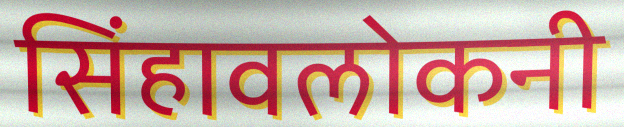
सिंहावलोकनी